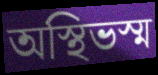
অস্থিভস্ম